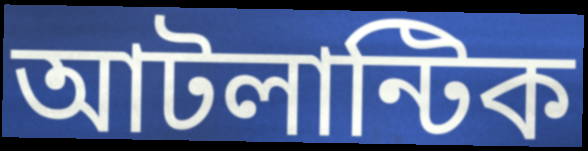
আটলান্টিক